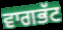
ਵਾਗਭੱਟ